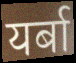
यर्बा